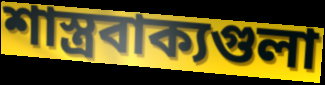
শাস্ত্রবাক্যগুলা